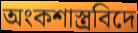
অংকশাস্ত্ৰবিদে